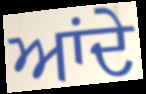
ਆਂਦੇ